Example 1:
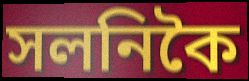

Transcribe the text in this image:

সলনিকৈ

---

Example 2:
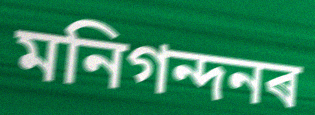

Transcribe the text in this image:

মনিগন্দনৰ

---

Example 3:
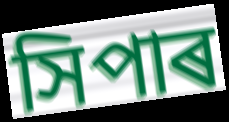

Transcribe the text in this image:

সিপাৰ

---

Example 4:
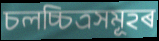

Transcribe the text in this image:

চলচ্চিত্ৰসমূহৰ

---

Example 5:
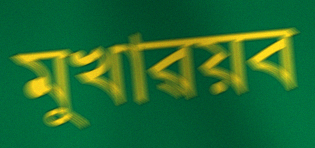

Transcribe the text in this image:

মুখাৱয়ব